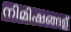
നിമിഷങ്ങള്